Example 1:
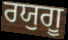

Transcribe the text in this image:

ਰਯੁਗੂ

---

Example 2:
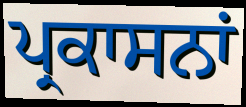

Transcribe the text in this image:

ਪ੍ਰਕਾਸਨਾਂ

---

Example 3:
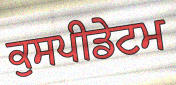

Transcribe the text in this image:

ਕੁਸਪੀਡੇਟਮ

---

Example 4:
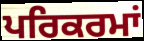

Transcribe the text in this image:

ਪਰਿਕਰਮਾਂ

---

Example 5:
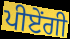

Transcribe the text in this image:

ਪੀਏਂਗੀ